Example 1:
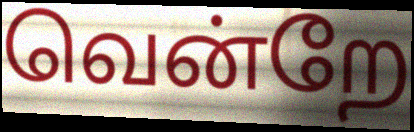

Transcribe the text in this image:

வென்றே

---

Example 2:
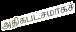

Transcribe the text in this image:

அதிகபட்சமாகச்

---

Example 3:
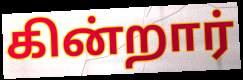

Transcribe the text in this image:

கின்றார்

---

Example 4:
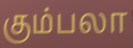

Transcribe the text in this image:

கும்பலா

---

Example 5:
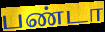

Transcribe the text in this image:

பண்டா